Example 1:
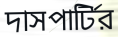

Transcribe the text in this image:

দাসপার্টির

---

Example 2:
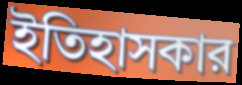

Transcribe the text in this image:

ইতিহাসকার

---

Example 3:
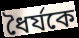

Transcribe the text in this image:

ধৈর্যকে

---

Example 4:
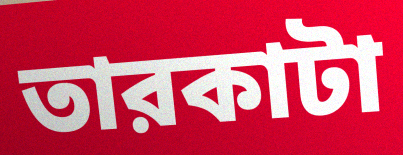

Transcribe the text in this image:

তারকাটা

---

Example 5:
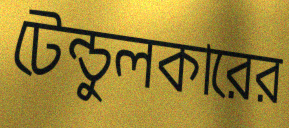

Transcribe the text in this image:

টেন্ডুলকারের